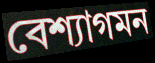
বেশ্যাগমন